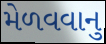
મેળવવાનુ